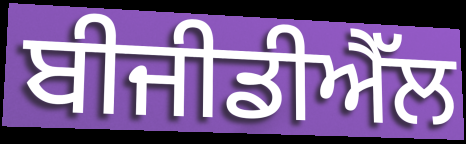
ਬੀਜੀਡੀਐੱਲ